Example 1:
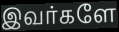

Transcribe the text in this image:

இவர்களே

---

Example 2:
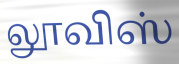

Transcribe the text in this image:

லூவிஸ்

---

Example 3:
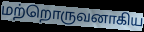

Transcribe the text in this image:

மற்றொருவனாகிய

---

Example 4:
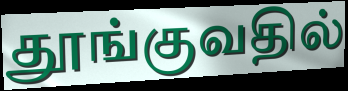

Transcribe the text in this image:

தூங்குவதில்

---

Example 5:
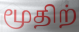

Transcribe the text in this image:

மூதிற்